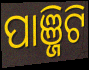
ପାଞ୍ଜିଟି